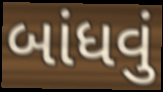
બાંધવું